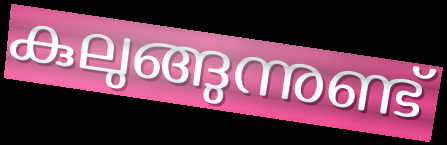
കുലുങ്ങുന്നുണ്ട്